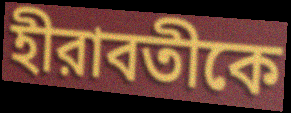
হীরাবতীকে